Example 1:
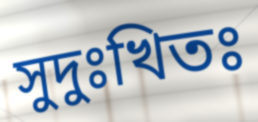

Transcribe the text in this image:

সুদুঃখিতঃ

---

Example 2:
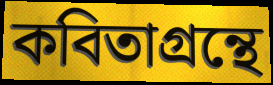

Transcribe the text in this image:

কবিতাগ্রন্থে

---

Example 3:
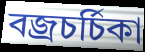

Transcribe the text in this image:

বজ্রচর্চিকা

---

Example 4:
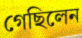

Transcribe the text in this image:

গেছিলেন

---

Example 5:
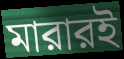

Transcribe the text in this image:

মারারই